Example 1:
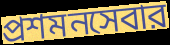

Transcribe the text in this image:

প্রশমনসেবার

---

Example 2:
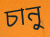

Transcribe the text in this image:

চানু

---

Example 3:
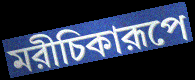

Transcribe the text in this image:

মরীচিকারূপে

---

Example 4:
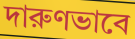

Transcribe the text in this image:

দারুণভাবে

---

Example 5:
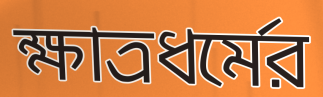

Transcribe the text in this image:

ক্ষাত্রধর্মের